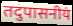
तदुपासनीयं